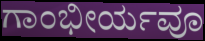
ಗಾಂಭೀರ್ಯವೂ